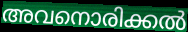
അവനൊരിക്കൽ